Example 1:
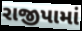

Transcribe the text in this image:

રાજીપામાં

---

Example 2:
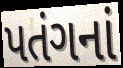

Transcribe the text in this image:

પતંગનાં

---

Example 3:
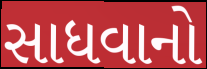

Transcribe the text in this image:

સાધવાનો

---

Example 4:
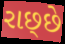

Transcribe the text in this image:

રાછ્છે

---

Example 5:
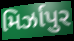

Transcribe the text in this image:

મિર્ઝાપુર